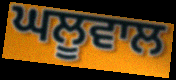
ਘਲੂਵਾਲ